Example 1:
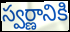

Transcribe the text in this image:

స్వర్ణానికి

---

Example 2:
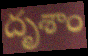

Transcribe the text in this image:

దృశాం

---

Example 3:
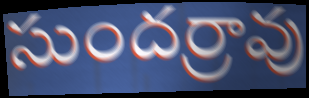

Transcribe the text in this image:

సుందర్రావు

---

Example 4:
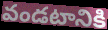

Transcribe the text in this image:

వండటానికి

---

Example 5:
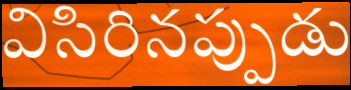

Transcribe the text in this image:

విసిరినప్పుడు